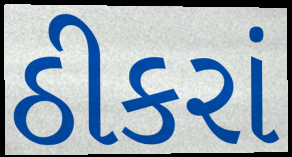
ઠીકરાં